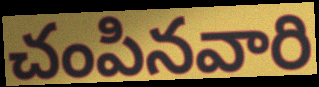
చంపినవారి